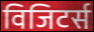
विजिटर्स